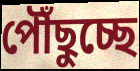
পৌঁছুচ্ছে